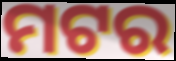
ମଟର